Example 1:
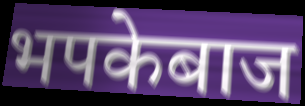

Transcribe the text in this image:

भपकेबाज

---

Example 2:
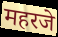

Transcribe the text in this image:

महरजे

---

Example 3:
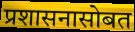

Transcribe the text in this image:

प्रशासनासोबत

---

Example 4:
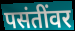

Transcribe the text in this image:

पसंतींवर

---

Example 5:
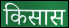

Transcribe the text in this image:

किसास